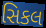
સિકલ